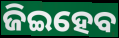
ଜିଇହେବ